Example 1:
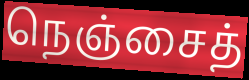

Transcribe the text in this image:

நெஞ்சைத்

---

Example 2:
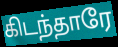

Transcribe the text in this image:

கிடந்தாரே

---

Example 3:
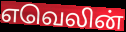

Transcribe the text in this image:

எவெலின்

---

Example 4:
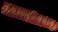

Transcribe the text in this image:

தயவுசெய்து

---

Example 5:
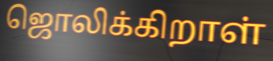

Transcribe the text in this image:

ஜொலிக்கிறாள்